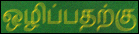
ஒழிப்பதற்கு